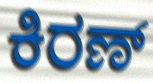
ಕಿರಣ್